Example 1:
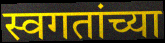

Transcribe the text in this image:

स्वगतांच्या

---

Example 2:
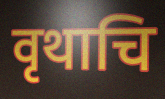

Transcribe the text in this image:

वृथाचि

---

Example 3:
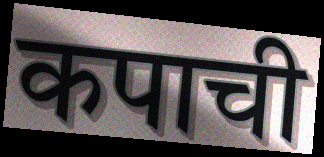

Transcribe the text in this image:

कपाची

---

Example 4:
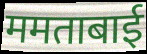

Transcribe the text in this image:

ममताबाई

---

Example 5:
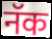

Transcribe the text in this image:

नॅक